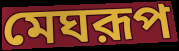
মেঘরূপ